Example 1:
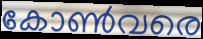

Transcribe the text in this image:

കോൺവരെ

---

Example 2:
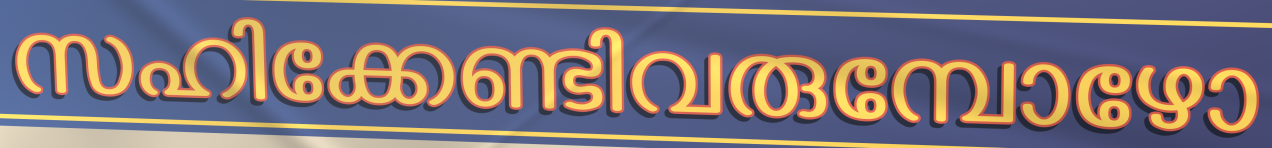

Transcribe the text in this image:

സഹിക്കേണ്ടിവരുമ്പോഴോ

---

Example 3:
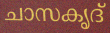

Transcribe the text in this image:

ചാസകൃദ്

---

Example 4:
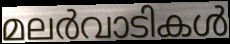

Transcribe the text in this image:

മലർവാടികൾ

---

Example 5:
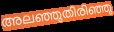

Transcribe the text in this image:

അലഞ്ഞുതിരിഞ്ഞു